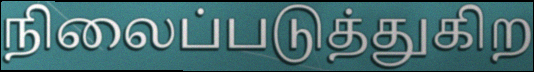
நிலைப்படுத்துகிற